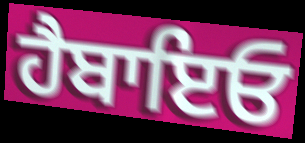
ਹੈਬਾਇਓ